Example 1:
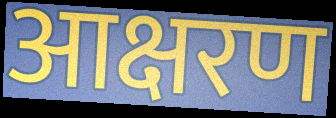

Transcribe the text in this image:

आक्षरण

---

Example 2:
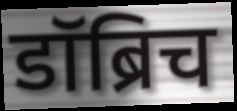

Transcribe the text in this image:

डॉब्रिच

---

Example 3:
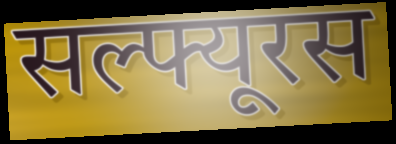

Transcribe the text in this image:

सल्फ्यूरस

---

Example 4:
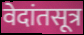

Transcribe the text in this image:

वेदांतसूत्र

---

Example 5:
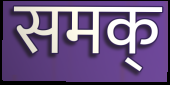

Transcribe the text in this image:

समक्